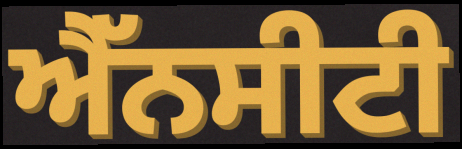
ਐੱਨਸੀਟੀ